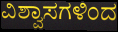
ವಿಶ್ವಾಸಗಳಿಂದ